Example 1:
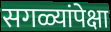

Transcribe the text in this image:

सगळ्यांपेक्षा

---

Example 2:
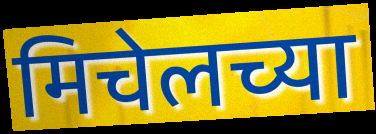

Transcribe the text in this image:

मिचेलच्या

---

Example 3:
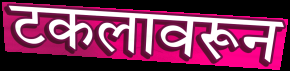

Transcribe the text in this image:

टकलावरून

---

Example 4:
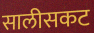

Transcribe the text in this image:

सालीसकट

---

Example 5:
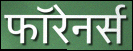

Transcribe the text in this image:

फॉरेनर्स